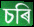
চৰি